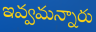
ఇవ్వమన్నారు